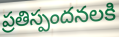
ప్రతిస్పందనలకి